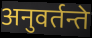
अनुवर्तन्ते